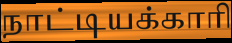
நாட்டியக்காரி